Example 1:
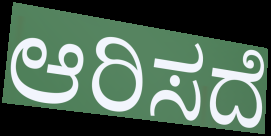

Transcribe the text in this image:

ಆರಿಸದೆ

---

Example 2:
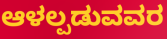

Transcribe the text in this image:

ಆಳಲ್ಪಡುವವರ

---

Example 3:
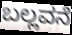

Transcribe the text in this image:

ಬಲ್ಲವನೆ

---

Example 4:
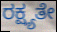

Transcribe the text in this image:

ರಕ್ಷ್ಯತೇ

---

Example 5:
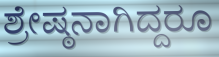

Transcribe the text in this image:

ಶ್ರೇಷ್ಠನಾಗಿದ್ದರೂ